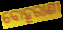
ବୋହୂରାଣୀ